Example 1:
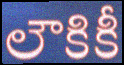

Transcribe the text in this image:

లౌకికీ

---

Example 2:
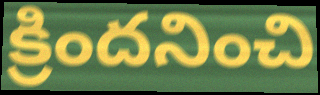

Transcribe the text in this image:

క్రిందనించి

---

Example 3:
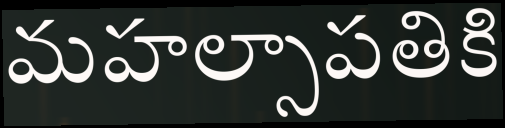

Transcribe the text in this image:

మహల్సాపతికి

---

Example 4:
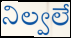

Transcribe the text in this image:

నిల్వలే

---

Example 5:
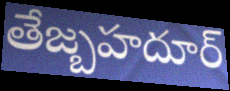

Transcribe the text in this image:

తేజ్బహదూర్